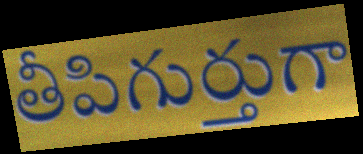
తీపిగుర్తుగా